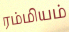
ரம்மியம்